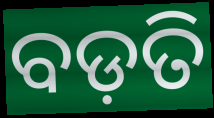
ବଡ଼ତି